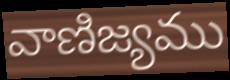
వాణిజ్యము